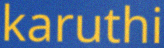
karuthi